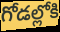
గోడల్లోకి